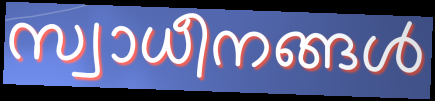
സ്വാധീനങ്ങൾ